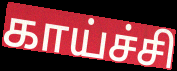
காய்ச்சி